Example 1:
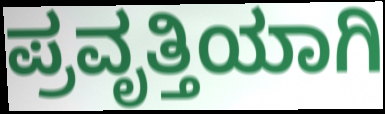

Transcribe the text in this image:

ಪ್ರವೃತ್ತಿಯಾಗಿ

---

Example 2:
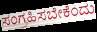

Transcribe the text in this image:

ಸಂಗ್ರಹಿಸಬೇಕೆಂದು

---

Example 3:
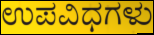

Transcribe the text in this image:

ಉಪವಿಧಗಳು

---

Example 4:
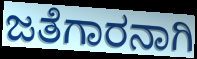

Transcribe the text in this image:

ಜತೆಗಾರನಾಗಿ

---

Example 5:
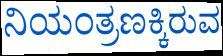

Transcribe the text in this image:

ನಿಯಂತ್ರಣಕ್ಕಿರುವ